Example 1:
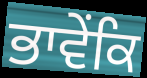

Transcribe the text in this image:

ਭਾਵੇਂਕਿ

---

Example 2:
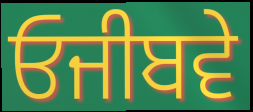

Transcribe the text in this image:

ਓਜੀਬਵੇ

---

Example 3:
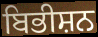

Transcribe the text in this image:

ਬਿਭੀਸ਼ਨ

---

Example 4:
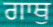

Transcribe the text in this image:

ਗਾਥੁ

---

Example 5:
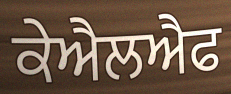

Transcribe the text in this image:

ਕੇਐਲਐਫ